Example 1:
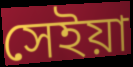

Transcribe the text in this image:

সেইয়া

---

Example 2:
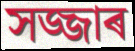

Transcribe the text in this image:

সজ্জাৰ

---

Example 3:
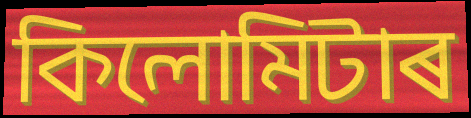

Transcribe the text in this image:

কিলোমিটাৰ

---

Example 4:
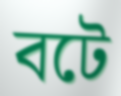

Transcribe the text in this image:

বটে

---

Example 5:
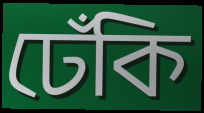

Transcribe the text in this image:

ঢেঁকি